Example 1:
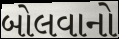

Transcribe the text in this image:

બોલવાનો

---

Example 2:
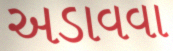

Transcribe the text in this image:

અડાવવા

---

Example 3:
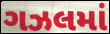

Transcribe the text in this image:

ગઝલમાં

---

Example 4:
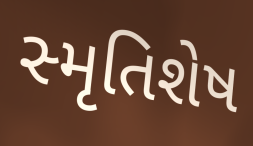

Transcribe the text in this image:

સ્મૃતિશેષ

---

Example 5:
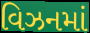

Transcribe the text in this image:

વિઝનમાં